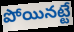
పోయినట్టే